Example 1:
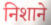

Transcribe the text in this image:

निशाने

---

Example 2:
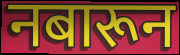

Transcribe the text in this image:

नबारून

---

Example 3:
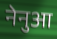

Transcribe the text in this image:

नेनुआ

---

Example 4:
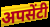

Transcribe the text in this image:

अपसेंटी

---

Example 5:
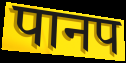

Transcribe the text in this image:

पानप